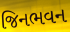
જિનભવન